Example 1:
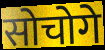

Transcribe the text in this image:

सोचोगे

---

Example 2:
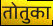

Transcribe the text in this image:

तोतुका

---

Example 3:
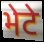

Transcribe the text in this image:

भेटे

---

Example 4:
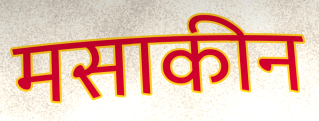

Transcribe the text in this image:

मसाकीन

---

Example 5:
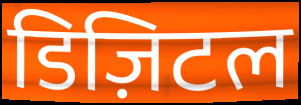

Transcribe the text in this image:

डिज़िटल